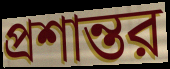
প্রশান্তর